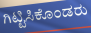
ಗಿಟ್ಟಿಸಿಕೊಂಡರು